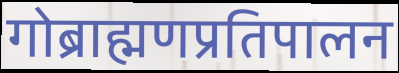
गोब्राह्मणप्रतिपालन